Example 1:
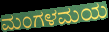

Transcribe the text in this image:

ಮಂಗಳಮಯ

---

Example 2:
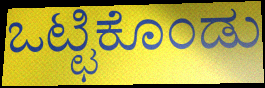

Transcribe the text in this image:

ಒಟ್ಟಿಕೊಂಡು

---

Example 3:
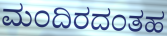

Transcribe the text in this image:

ಮಂದಿರದಂತಹ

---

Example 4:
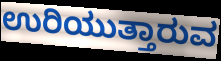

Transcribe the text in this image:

ಉರಿಯುತ್ತಾರುವ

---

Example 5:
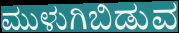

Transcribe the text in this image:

ಮುಳುಗಿಬಿಡುವ